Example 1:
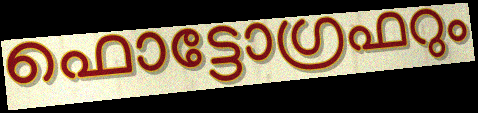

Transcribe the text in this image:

ഫൊട്ടോഗ്രഫറും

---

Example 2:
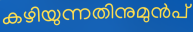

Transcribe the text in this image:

കഴിയുന്നതിനുമുൻപ്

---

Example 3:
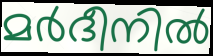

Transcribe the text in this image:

മർദീനിൽ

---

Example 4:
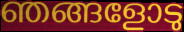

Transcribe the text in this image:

ഞങ്ങളോടു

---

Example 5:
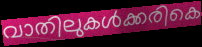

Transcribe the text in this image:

വാതിലുകൾക്കരികെ